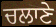
ਚਲਾਣੇ